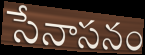
సేనాసనం